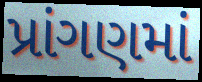
પ્રાંગણમાં